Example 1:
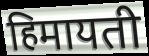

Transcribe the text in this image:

हिमायती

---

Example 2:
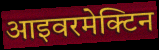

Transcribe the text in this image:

आइवरमेक्टिन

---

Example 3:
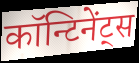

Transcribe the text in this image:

कॉन्टिनेंट्स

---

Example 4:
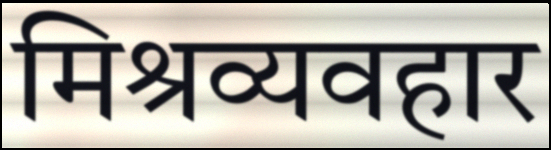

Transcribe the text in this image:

मिश्रव्यवहार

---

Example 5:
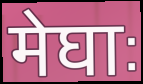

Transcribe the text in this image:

मेघाः